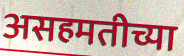
असहमतीच्या